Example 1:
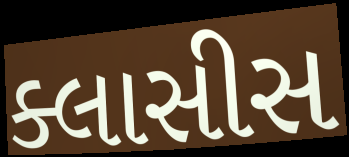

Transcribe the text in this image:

ક્લાસીસ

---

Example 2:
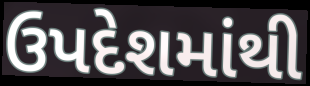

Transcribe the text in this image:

ઉપદેશમાંથી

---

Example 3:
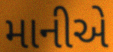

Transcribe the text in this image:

માનીએ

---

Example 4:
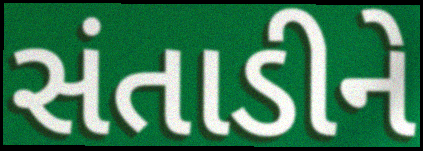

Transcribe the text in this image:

સંતાડીને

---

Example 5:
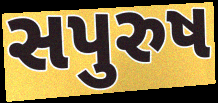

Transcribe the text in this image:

સપુરુષ